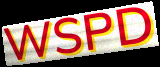
WSPD